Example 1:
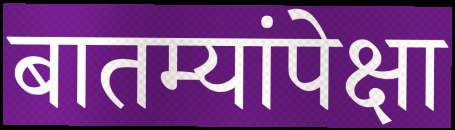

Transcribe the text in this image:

बातम्यांपेक्षा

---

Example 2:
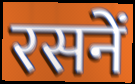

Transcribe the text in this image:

रसनें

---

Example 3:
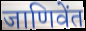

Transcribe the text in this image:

जाणिवेंत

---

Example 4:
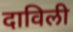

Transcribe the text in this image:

दाविली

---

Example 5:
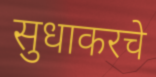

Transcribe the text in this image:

सुधाकरचे